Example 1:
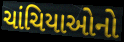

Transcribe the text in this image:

ચાંચિયાઓનો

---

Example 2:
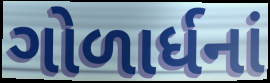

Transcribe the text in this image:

ગોળાર્ધનાં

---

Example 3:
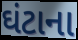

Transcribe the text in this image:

ઘંટાના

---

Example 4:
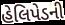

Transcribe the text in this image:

હેલિપેડની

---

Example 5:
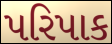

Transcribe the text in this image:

પરિપાક